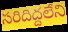
సరిదిద్దలేని